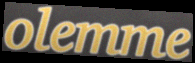
olemme